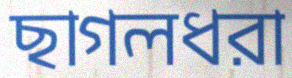
ছাগলধরা